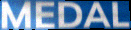
MEDAL